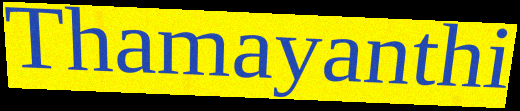
Thamayanthi